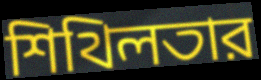
শিথিলতার